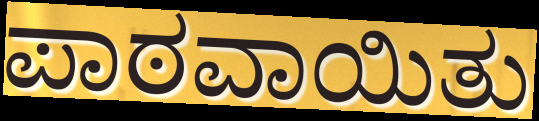
ಪಾಠವಾಯಿತು